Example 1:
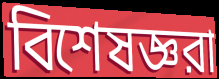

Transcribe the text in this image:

বিশেষজ্ঞরা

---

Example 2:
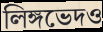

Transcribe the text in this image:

লিঙ্গভেদও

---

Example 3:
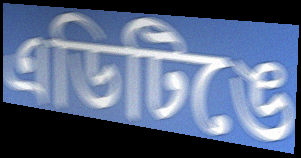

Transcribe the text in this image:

এডিটিঙে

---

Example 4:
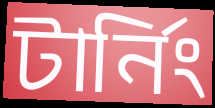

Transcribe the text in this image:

টার্নিং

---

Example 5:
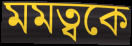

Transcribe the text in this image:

মমত্বকে